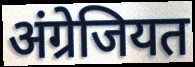
अंग्रेजियत